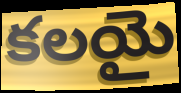
కలయై